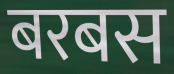
बरबस